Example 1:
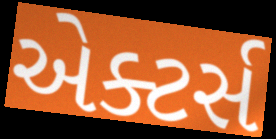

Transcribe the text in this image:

એક્ટર્સ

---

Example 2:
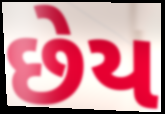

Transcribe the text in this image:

છેય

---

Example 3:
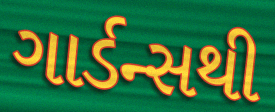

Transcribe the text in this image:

ગાર્ડન્સથી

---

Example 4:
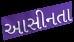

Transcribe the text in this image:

આસીનતા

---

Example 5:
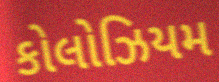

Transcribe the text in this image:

કોલોઝિયમ